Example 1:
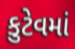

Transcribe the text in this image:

કુટેવમાં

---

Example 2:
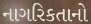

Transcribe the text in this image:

નાગરિકતાનો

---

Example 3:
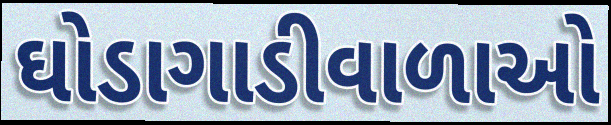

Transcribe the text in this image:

ઘોડાગાડીવાળાઓ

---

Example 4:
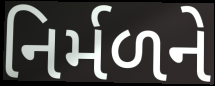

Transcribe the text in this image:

નિર્મળને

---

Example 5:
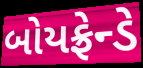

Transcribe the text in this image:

બોયફ્રેન્ડે